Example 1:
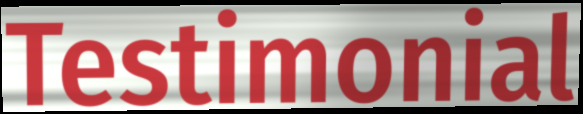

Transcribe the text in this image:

Testimonial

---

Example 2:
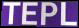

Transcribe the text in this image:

TEPL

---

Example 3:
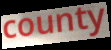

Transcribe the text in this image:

county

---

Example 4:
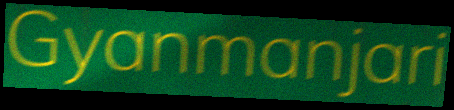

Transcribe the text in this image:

Gyanmanjari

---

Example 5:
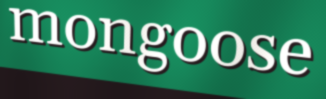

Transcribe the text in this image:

mongoose